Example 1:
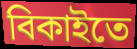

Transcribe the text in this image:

বিকাইতে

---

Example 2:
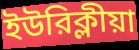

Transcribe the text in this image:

ইউরিক্লীয়া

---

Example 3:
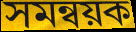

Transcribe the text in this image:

সমন্বয়ক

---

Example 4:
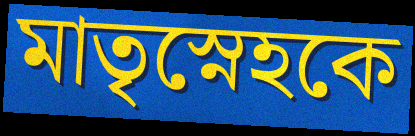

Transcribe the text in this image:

মাতৃস্নেহকে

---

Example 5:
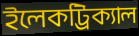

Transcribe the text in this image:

ইলেকট্রিক্যাল